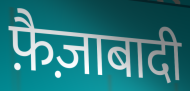
फ़ैज़ाबादी